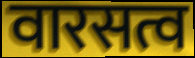
वारसत्व